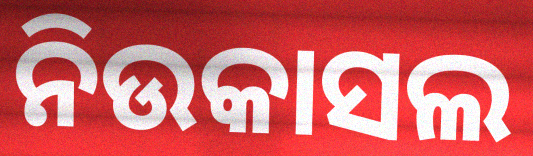
ନିଉକାସଲ